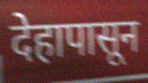
देहापासून